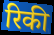
रिकी